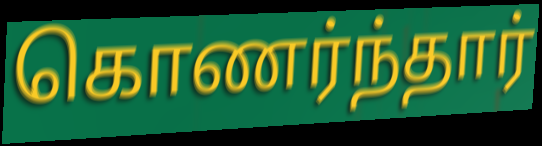
கொணர்ந்தார்